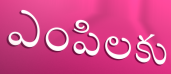
ఎంపిలకు